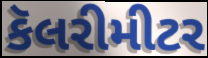
કૅલરીમીટર